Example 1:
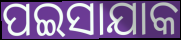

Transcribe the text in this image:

ପଇସାଯାକ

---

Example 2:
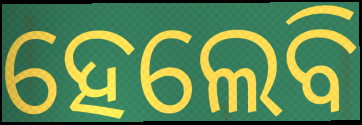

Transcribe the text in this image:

ହେଲେବି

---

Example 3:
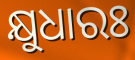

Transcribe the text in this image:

କ୍ଷୁଧାରଃ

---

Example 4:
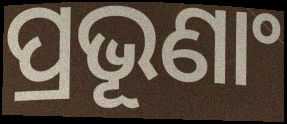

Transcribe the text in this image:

ପ୍ରଭୂଣାଂ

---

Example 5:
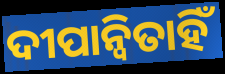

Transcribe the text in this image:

ଦୀପାନ୍ୱିତାହିଁ